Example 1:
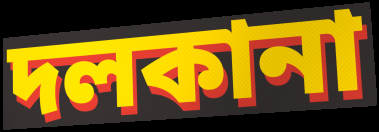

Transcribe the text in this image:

দলকানা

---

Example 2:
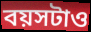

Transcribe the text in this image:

বয়সটাও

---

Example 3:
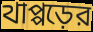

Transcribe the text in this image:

থাপ্পড়ের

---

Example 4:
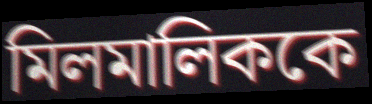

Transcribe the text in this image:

মিলমালিককে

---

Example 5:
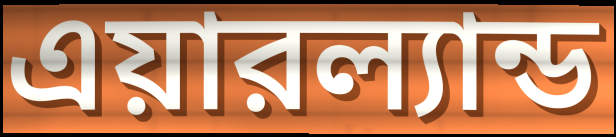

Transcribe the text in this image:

এয়ারল্যান্ড